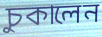
চুকালেন